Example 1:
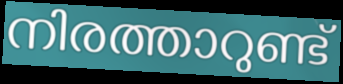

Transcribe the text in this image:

നിരത്താറുണ്ട്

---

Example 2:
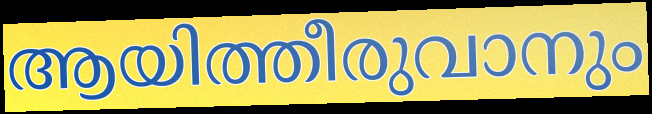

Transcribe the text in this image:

ആയിത്തീരുവാനും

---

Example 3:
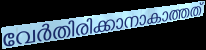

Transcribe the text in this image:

വേർതിരിക്കാനാകാത്തത്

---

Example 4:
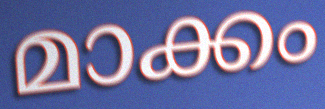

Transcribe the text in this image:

മാക്കം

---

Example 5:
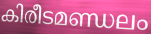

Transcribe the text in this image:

കിരീടമണ്ഡലം